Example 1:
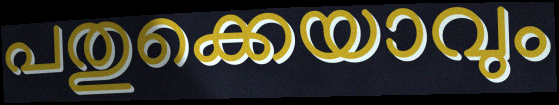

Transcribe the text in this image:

പതുക്കെയാവും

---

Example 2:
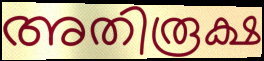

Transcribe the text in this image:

അതിരൂക്ഷ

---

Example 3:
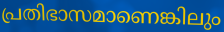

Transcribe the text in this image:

പ്രതിഭാസമാണെങ്കിലും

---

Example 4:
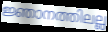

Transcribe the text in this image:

ജ്ഞാനത്തിലല്ല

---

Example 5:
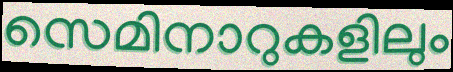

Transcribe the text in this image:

സെമിനാറുകളിലും